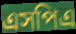
এসপিএ